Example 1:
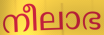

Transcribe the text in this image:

നീലാഭ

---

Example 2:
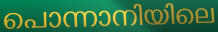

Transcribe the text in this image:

പൊന്നാനിയിലെ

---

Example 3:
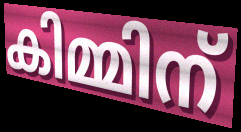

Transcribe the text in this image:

കിമ്മിന്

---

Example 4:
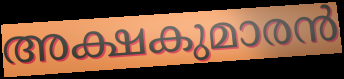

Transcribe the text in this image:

അക്ഷകുമാരൻ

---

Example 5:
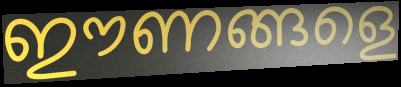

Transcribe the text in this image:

ഈണങ്ങളെ